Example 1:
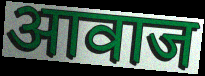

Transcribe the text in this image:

आवाज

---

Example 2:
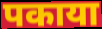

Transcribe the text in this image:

पकाया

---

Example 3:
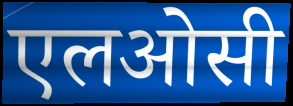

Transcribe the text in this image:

एलओसी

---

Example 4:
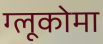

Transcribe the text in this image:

ग्लूकोमा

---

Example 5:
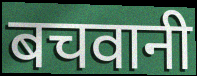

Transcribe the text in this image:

बचवानी